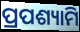
ପ୍ରପଶ୍ୟାମି